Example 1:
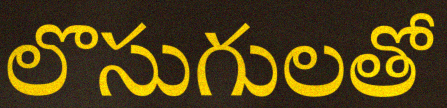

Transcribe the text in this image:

లొసుగులతో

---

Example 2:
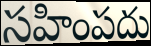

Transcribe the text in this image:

సహింపదు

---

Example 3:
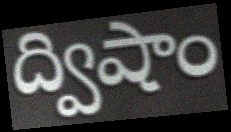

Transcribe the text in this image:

ద్విషాం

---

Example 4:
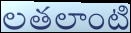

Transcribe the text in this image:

లతలాంటి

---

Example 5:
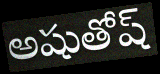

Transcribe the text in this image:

అషుతోష్